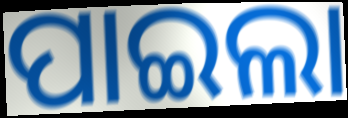
ପାଇଲା